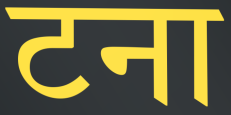
टना